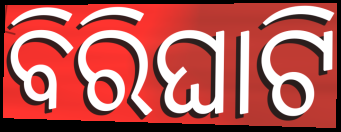
ବିରିଘାଟି